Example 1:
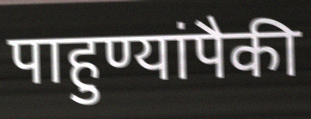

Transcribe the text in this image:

पाहुण्यांपैकी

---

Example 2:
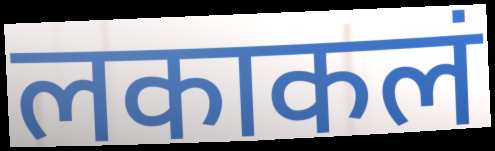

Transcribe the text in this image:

लकाकलं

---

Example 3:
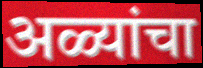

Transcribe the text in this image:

अळ्यांचा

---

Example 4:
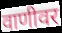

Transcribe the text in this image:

वाणीवर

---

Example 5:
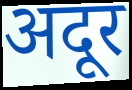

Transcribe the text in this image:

अदूर